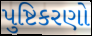
પુષ્ટિકરણો